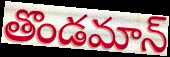
తొండమాన్